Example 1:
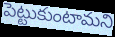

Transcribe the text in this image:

పెట్టుకుంటామని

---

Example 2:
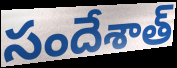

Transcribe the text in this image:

సందేశాత్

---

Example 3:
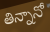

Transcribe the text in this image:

తిన్నానో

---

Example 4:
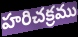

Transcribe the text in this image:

హరిచక్రము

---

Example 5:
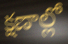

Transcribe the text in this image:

క్షణాల్లో